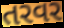
તરવર